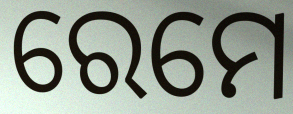
ରେମେ